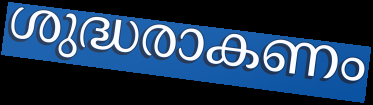
ശുദ്ധരാകണം